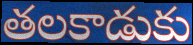
తలకాడుకు